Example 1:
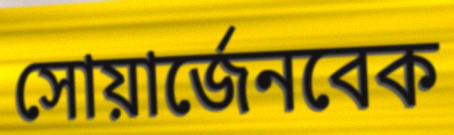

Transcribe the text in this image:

সোয়ার্জেনবেক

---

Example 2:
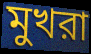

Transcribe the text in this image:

মুখরা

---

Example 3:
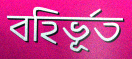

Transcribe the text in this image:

বহির্ভূত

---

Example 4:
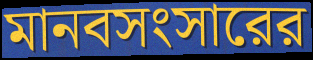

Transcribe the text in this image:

মানবসংসারের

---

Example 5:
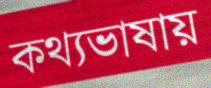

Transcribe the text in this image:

কথ্যভাষায়